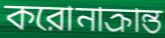
করোনাক্রান্ত